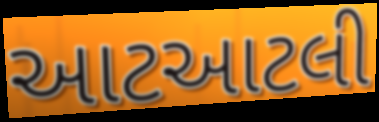
આટઆટલી